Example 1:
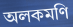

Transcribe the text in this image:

অলকমণি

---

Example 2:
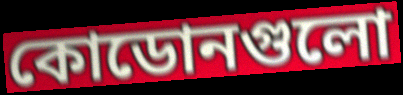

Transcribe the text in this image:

কোডোনগুলো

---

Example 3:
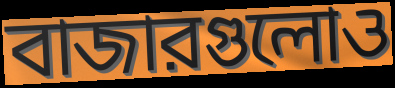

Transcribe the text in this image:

বাজারগুলোও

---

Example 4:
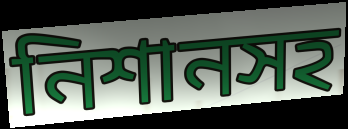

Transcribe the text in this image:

নিশানসহ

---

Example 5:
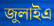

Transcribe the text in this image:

জুলাইএ